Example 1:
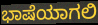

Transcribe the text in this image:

ಭಾಷೆಯಾಗಲಿ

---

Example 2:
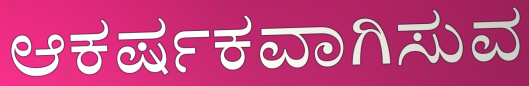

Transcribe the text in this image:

ಆಕರ್ಷಕವಾಗಿಸುವ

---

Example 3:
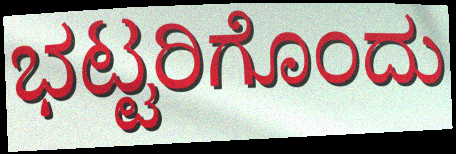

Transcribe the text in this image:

ಭಟ್ಟರಿಗೊಂದು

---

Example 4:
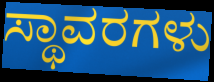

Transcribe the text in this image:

ಸ್ಥಾವರಗಳು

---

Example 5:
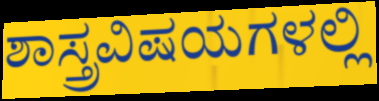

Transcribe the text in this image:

ಶಾಸ್ತ್ರವಿಷಯಗಳಲ್ಲಿ